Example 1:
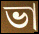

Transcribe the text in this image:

ভা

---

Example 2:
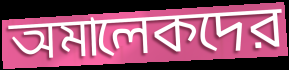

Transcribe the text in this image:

অমালেকদের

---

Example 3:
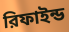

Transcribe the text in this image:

রিফাইন্ড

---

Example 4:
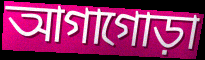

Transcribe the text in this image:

আগাগোড়া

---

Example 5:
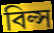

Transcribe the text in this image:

বিল্স